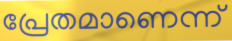
പ്രേതമാണെന്ന്